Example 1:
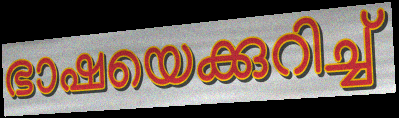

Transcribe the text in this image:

ഭാഷയെക്കുറിച്ച്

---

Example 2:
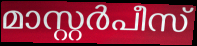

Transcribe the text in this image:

മാസ്റ്റർപീസ്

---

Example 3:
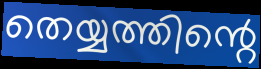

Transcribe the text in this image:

തെയ്യത്തിന്റെ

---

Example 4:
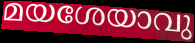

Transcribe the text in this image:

മയശേയാവു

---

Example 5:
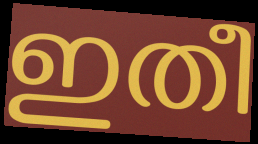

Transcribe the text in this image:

ഇതീ